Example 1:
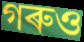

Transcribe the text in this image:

গৰুও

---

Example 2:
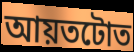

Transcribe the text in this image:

আয়তটোত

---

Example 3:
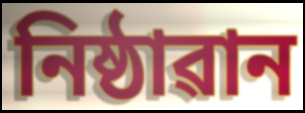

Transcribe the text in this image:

নিষ্ঠাৱান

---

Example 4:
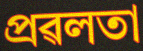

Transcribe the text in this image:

প্ৰৱলতা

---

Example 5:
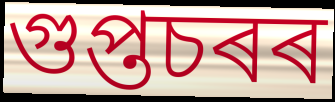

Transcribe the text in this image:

গুপ্তচৰৰ